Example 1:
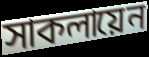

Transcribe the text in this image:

সাকলায়েন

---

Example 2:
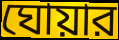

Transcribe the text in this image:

ঘোয়ার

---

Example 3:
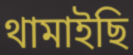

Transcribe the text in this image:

থামাইছি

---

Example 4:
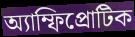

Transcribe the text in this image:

অ্যাম্ফিপ্রোটিক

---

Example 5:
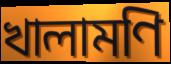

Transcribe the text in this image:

খালামণি